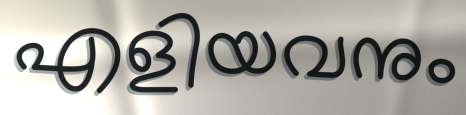
എളിയവനും